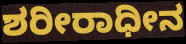
ಶರೀರಾಧೀನ